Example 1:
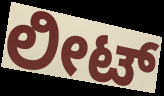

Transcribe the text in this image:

ಲೀಟ್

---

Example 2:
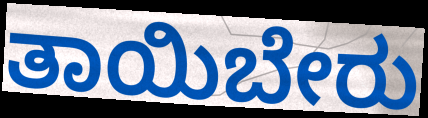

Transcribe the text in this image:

ತಾಯಿಬೇರು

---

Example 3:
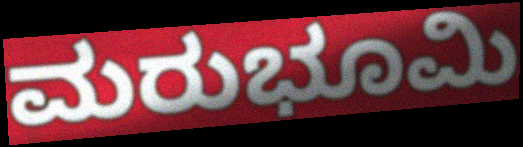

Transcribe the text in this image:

ಮರುಭೂಮಿ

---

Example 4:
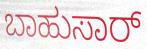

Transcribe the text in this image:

ಬಾಹುಸಾರ್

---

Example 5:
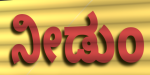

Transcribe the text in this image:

ನೀಡುಂ